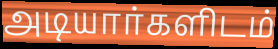
அடியார்களிடம்